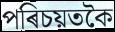
পৰিচয়তকৈ